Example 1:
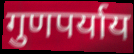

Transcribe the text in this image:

गुणपर्याय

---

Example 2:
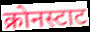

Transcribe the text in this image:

क्रोनस्टाट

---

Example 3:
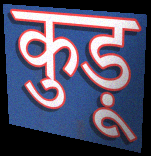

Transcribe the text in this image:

कुड़ू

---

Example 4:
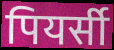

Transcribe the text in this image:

पियर्सी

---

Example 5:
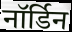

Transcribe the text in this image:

नॉर्डिन